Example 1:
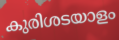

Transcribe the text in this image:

കുരിശടയാളം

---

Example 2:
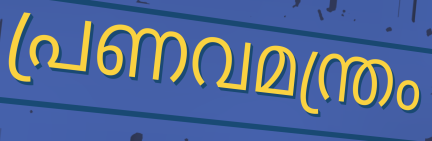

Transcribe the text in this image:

പ്രണവമന്ത്രം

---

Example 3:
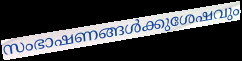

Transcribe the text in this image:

സംഭാഷണങ്ങൾക്കുശേഷവും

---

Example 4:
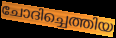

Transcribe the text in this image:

ചോദിച്ചെത്തിയ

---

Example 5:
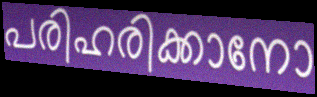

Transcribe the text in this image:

പരിഹരിക്കാനോ